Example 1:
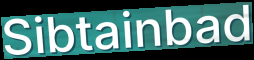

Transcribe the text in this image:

Sibtainbad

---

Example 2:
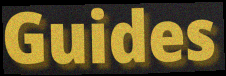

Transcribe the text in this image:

Guides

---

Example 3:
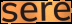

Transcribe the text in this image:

sere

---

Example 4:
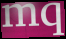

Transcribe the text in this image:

mq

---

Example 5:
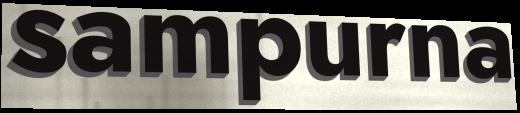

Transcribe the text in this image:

sampurna